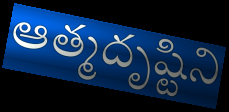
ఆత్మదృష్టిని